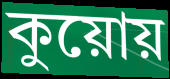
কুয়োয়